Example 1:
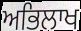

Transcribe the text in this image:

ਅਭਿਲਾਖ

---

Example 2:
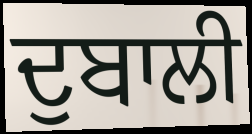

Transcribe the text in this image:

ਦੁਬਾਲੀ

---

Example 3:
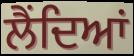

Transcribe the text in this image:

ਲੈਂਦਿਆਂ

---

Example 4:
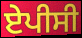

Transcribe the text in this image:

ਏਪੀਸੀ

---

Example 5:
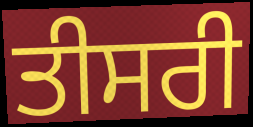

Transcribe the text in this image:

ਤੀਸਰੀ